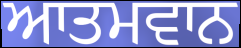
ਆਤਮਵਾਨ